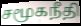
சமூகநீதி